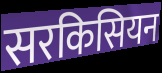
सरकिसियन